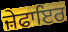
ਜ਼ੇਫਾਇਰ